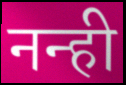
नन्ही